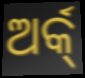
ଅର୍କ୍